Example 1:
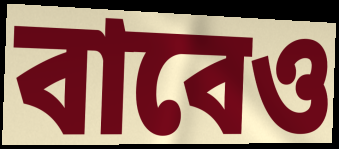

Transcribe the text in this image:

বাবেও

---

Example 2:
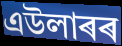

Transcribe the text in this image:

এউলাৰৰ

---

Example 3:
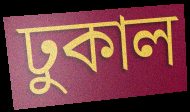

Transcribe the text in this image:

ঢুকাল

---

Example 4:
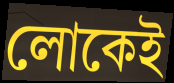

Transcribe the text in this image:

লোকেই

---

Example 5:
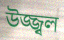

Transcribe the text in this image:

উজ্জ্বল